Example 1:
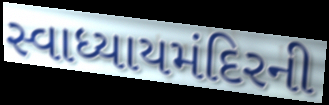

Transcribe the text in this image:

સ્વાધ્યાયમંદિરની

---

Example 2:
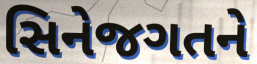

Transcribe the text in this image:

સિનેજગતને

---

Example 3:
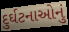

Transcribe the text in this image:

દુર્ઘટનાઓનું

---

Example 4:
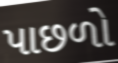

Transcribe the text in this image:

પાછળો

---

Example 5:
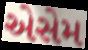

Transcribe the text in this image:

એસેમ